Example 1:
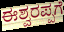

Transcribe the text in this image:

ಈಶ್ವರಪ್ಪಗೆ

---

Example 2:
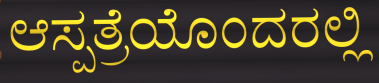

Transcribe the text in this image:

ಆಸ್ಪತ್ರೆಯೊಂದರಲ್ಲಿ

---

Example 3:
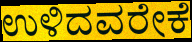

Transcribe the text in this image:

ಉಳಿದವರೇಕೆ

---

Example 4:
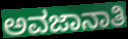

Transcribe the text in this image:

ಅವಜಾನಾತಿ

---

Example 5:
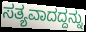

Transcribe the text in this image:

ಸತ್ಯವಾದದ್ದನ್ನು